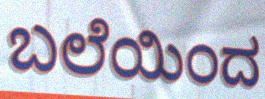
ಬಲೆಯಿಂದ